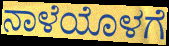
ನಾಳೆಯೊಳಗೆ